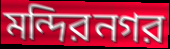
মন্দিরনগর